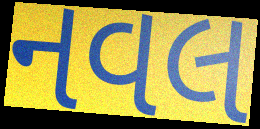
નવલ